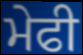
ਮੇਫੀ